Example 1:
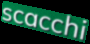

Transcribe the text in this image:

scacchi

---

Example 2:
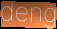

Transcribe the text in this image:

deng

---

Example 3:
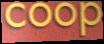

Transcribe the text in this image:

coop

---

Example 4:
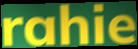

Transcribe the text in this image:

rahie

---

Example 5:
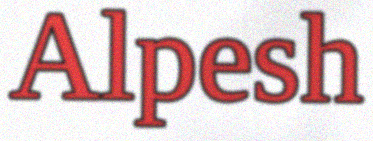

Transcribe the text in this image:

Alpesh